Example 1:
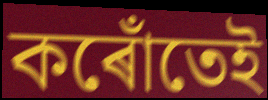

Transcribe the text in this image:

কৰোঁতেই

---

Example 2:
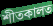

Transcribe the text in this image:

শীতকালত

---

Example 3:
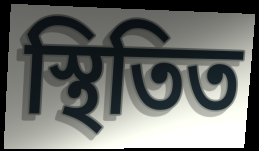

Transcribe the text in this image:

স্থিতিত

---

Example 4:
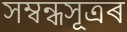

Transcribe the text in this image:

সম্বন্ধসূত্ৰৰ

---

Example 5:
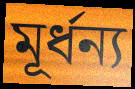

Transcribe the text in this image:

মূৰ্ধন্য